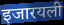
इजारयली